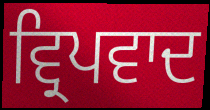
ਵ੍ਰਿਪਵਾਦ